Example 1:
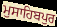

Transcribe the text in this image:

ਮੁਸਾਹਿਬਪੁਰ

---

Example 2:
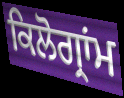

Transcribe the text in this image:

ਕਿਲੋਗ੍ਰਾਂਮ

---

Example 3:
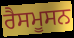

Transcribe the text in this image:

ਰੈਸਮੂਸਨ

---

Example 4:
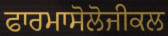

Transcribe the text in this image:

ਫਾਰਮਾਸੋਲੋਜੀਕਲ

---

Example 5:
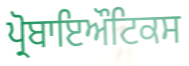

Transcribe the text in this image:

ਪ੍ਰੋਬਾਇਔਟਿਕਸ